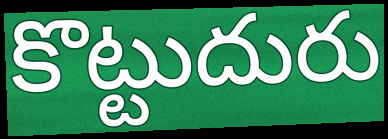
కొట్టుదురు